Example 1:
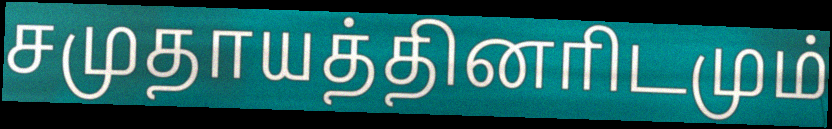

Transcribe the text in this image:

சமுதாயத்தினரிடமும்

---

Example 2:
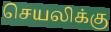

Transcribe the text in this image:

செயலிக்கு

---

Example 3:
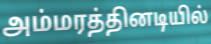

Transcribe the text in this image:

அம்மரத்தினடியில்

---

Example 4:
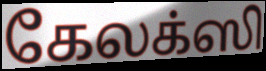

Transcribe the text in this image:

கேலக்ஸி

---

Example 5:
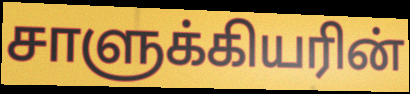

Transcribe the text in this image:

சாளுக்கியரின்